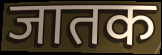
जातक